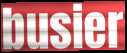
busier